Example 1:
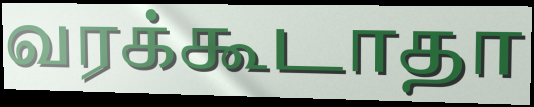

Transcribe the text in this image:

வரக்கூடாதா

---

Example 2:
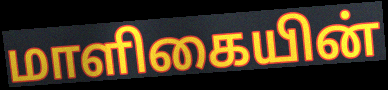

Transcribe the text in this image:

மாளிகையின்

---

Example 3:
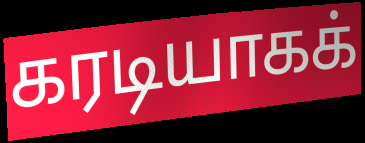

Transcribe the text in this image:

கரடியாகக்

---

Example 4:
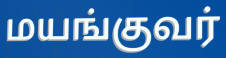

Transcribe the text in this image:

மயங்குவர்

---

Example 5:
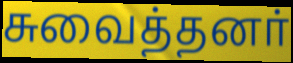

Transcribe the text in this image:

சுவைத்தனர்